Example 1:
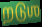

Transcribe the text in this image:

றடுஶ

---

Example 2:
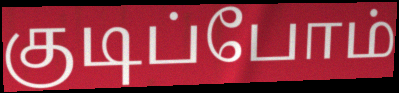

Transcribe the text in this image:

குடிப்போம்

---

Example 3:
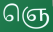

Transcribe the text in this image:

ஞெ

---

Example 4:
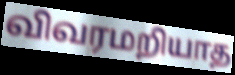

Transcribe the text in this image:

விவரமறியாத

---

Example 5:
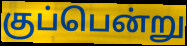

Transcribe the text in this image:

குப்பென்று